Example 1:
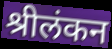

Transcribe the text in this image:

श्रीलंकन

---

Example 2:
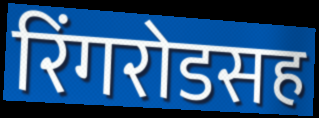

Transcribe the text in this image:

रिंगरोडसह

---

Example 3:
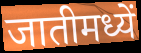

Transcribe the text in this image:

जातीमध्यें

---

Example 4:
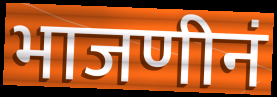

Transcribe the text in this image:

भाजणीनं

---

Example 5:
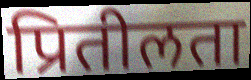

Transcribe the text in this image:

प्रितीलता